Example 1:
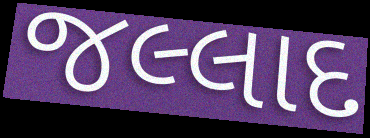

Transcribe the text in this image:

જલ્લાદ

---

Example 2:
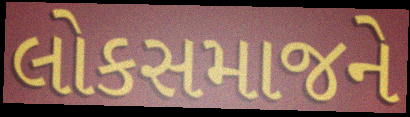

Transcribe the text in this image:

લોકસમાજને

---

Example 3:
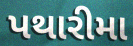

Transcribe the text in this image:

પથારીમા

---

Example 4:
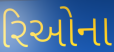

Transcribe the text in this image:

રિઓના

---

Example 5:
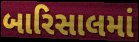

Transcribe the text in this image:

બારિસાલમાં